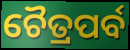
ଚୈତ୍ରପର୍ବ